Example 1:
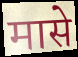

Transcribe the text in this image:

मासे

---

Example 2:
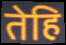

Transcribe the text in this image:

तेहि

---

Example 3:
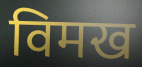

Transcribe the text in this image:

विमख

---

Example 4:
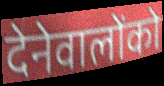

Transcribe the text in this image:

देनेवालोंको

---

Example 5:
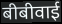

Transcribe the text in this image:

बीबीवाई